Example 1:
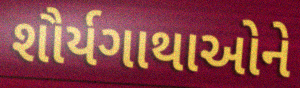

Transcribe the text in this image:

શૌર્યગાથાઓને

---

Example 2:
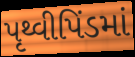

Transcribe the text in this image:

પૃથ્વીપિંડમાં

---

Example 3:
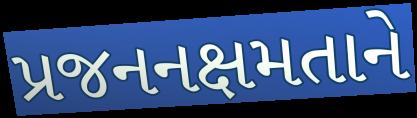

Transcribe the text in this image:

પ્રજનનક્ષમતાને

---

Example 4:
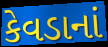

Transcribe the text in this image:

કેવડાનાં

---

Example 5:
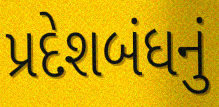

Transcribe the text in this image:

પ્રદેશબંધનું